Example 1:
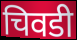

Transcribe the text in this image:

चिवडी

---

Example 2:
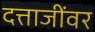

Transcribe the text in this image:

दत्ताजींवर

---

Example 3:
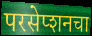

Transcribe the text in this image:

परसेप्शनचा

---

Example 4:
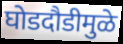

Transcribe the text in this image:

घोडदौडीमुळे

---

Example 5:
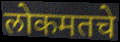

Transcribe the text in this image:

लोकमतचे